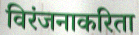
विरंजनाकरिता